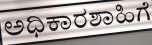
ಅಧಿಕಾರಶಾಹಿಗೆ